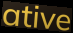
ative